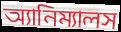
অ্যানিম্যালস